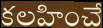
కలహించే